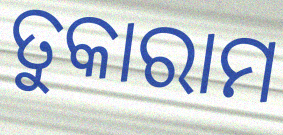
ତୁକାରାମ